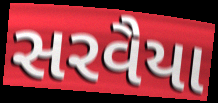
સરવૈયા